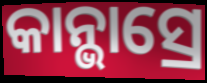
କାନ୍ଭାସ୍ରେ